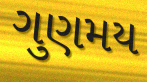
ગુણમય